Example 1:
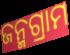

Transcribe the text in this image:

ଜନ୍ମଗ୍ରାମ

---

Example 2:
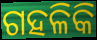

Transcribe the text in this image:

ଗହଳିକି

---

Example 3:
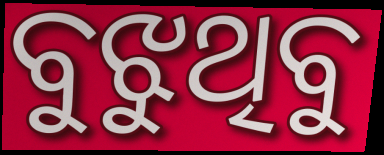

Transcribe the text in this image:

ବୁଝୁଥିବୁ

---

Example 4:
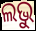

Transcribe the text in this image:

ଲଭୁ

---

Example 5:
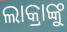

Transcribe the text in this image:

ଲାକ୍ରାଙ୍କୁ